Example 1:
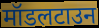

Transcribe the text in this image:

मॉडलटाउन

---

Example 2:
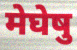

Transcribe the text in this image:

मेघेषु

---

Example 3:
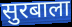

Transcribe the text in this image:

सुरबाला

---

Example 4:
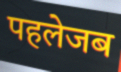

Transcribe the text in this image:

पहलेजब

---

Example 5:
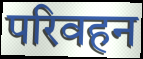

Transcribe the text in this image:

परिवहन